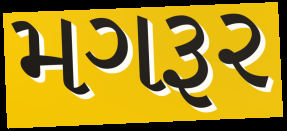
મગરૂર